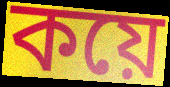
কয়ে